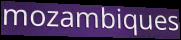
mozambiques